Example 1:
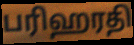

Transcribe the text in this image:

பரிஹரதி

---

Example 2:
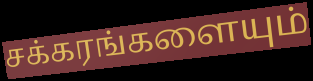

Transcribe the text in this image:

சக்கரங்களையும்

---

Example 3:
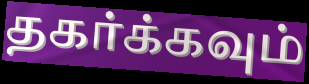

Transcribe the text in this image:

தகர்க்கவும்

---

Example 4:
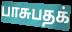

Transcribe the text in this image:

பாசுபதக்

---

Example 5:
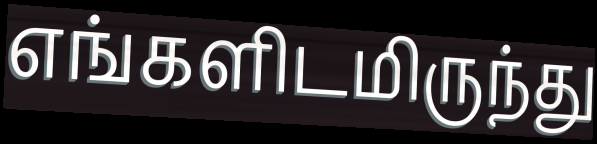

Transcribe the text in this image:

எங்களிடமிருந்து